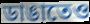
ডাঙাতেও